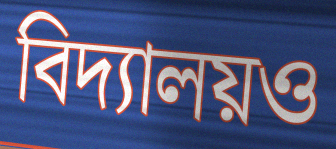
বিদ্যালয়ও